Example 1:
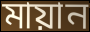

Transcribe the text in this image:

মায়ান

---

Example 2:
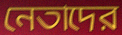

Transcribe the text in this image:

নেতাদের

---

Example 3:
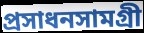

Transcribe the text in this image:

প্রসাধনসামগ্রী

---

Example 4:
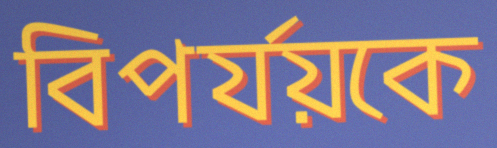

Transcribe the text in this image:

বিপর্যয়কে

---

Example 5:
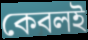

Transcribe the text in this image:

কেবলই